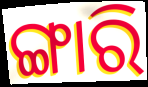
ଙ୍ଗାରି